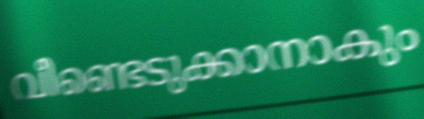
വീണ്ടെടുക്കാനാകും